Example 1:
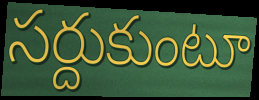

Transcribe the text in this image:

సర్దుకుంటూ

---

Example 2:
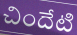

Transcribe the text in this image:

చిందేటి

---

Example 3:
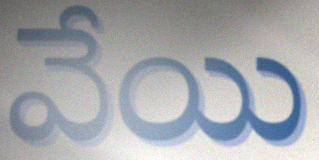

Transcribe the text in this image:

వేయి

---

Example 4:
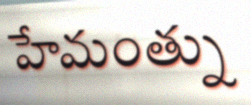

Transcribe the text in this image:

హేమంత్ను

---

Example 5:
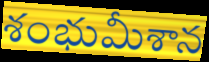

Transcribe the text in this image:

శంభుమీశాన